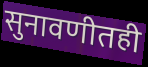
सुनावणीतही